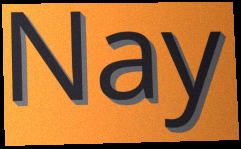
Nay